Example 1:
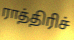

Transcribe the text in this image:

ராத்திரிச்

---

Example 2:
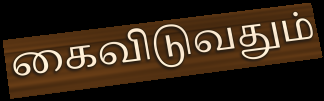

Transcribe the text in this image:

கைவிடுவதும்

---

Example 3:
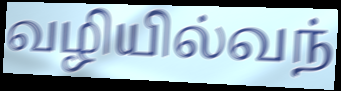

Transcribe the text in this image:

வழியில்வந்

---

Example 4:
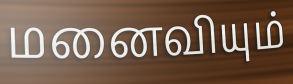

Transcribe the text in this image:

மனைவியும்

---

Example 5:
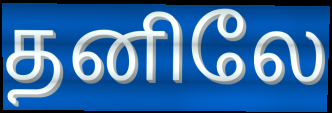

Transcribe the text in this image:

தனிலே